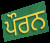
ਪੌਰਨ